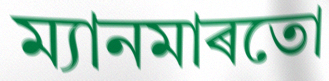
ম্যানমাৰতো